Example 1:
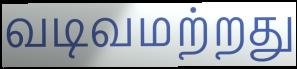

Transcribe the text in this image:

வடிவமற்றது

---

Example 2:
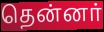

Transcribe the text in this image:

தென்னர்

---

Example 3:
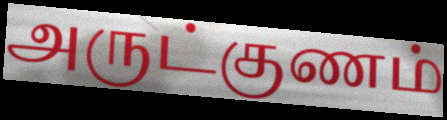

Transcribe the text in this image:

அருட்குணம்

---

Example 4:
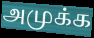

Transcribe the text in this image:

அமுக்க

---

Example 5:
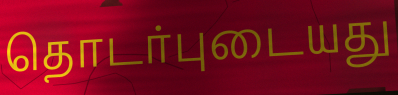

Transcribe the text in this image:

தொடர்புடையது